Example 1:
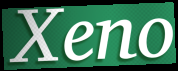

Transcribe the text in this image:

Xeno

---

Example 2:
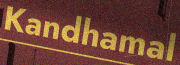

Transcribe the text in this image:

Kandhamal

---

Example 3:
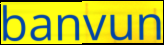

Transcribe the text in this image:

banvun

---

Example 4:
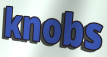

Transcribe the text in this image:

knobs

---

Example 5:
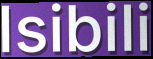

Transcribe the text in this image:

Isibili